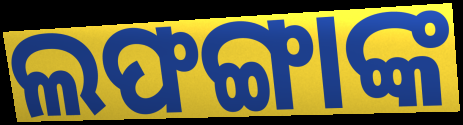
ଲଫଙ୍ଗାଙ୍କ